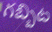
గబ్బిట